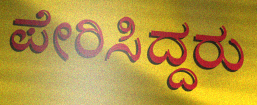
ಪೇರಿಸಿದ್ದರು